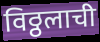
विठ्ठलाची